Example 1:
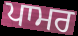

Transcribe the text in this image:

ਪਾਮਰ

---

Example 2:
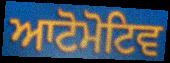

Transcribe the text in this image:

ਆਟੋਮੋਟਿਵ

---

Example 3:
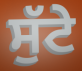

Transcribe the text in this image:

ਸੁੱਟੇ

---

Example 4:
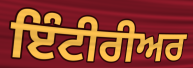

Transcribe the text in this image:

ਇੰਟੀਰੀਅਰ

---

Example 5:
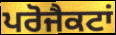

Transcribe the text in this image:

ਪਰੋਜੈਕਟਾਂ